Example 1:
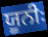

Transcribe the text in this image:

ਯੂਨੀਃ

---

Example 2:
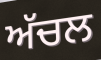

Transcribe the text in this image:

ਅੱਚਲ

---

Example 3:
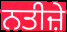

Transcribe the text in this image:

ਨਤੀਜ਼ੇ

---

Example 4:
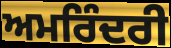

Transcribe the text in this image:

ਅਮਰਿੰਦਰੀ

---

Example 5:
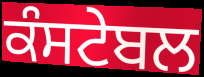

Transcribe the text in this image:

ਕੰਸਟੇਬਲ